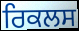
ਰਿਕਲਸ